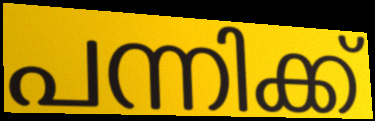
പന്നിക്ക്